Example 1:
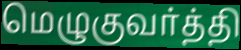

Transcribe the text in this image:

மெழுகுவர்த்தி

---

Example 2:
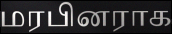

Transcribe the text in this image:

மரபினராக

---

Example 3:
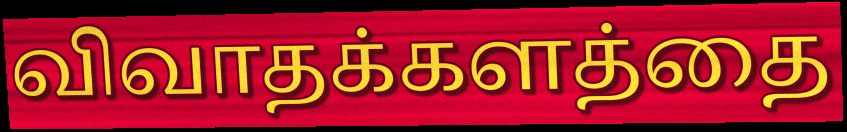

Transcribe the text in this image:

விவாதக்களத்தை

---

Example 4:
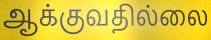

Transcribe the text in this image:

ஆக்குவதில்லை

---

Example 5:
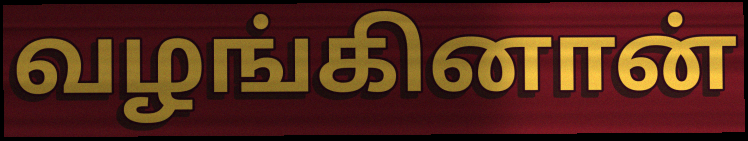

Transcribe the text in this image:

வழங்கினான்